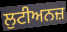
ਲੁਟੀਅਨਜ਼